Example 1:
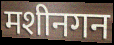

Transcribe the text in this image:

मशीनगन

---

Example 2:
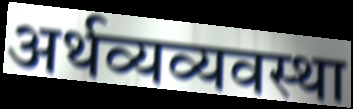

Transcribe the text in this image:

अर्थव्यव्यवस्था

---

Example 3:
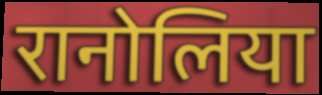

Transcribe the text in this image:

रानोलिया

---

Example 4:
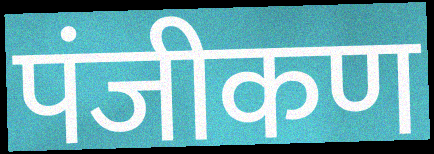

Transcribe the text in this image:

पंजीकण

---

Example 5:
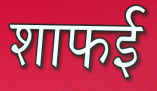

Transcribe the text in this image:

शाफई